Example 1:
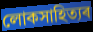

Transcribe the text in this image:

লোকসাহিত্যৰ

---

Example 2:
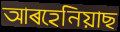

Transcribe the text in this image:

আৰহেনিয়াছ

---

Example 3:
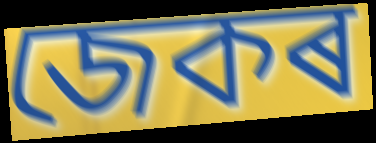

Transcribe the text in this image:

জেকৰ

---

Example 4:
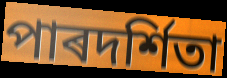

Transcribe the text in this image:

পাৰদৰ্শিতা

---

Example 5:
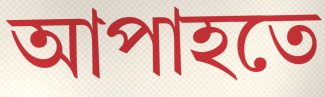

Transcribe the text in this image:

আপাহতে